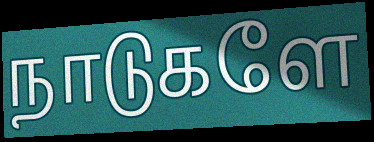
நாடுகளே